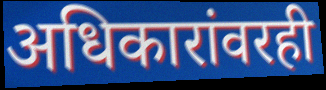
अधिकारांवरही